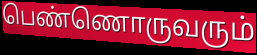
பெண்ணொருவரும்